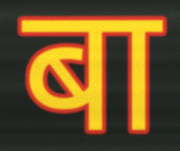
बा